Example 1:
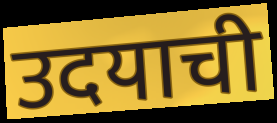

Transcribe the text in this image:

उदयाची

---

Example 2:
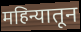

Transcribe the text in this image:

महिन्यातून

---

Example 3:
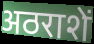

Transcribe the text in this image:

अठराशें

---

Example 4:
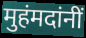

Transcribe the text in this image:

मुहंमदांनीं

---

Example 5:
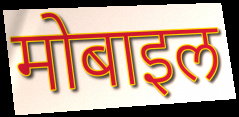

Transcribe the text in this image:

मोबाइल